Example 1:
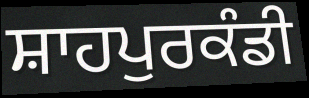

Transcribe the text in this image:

ਸ਼ਾਹਪੁਰਕੰਡੀ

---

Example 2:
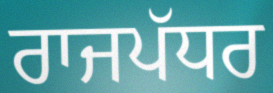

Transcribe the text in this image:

ਰਾਜਪੱਧਰ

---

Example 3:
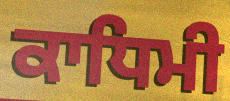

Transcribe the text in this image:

ਕਾਧਿਮੀ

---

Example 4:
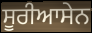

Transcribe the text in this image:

ਸੂਰੀਆਸੇਨ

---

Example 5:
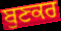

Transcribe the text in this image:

ਬੁਣਕਰ